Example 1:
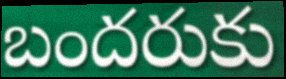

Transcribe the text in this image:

బందరుకు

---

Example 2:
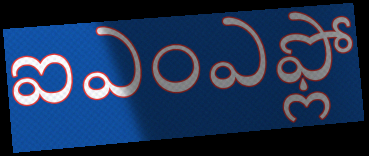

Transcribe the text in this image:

ఐఎంఎఫ్లో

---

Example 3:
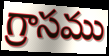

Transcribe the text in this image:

గ్రాసము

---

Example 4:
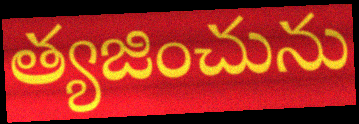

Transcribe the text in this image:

త్యజించును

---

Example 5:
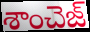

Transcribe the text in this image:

శాంచెజ్